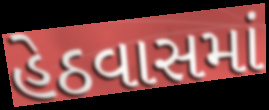
હેઠવાસમાં